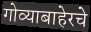
गोव्याबाहेरचे